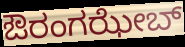
ಔರಂಗಝೇಬ್